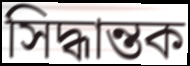
সিদ্ধান্তক